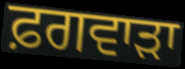
ਫ਼ਗਵਾੜਾ